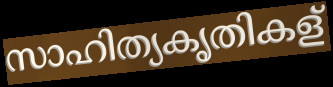
സാഹിത്യകൃതികള്